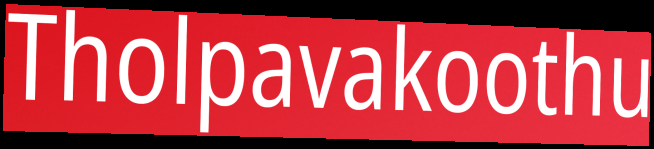
Tholpavakoothu